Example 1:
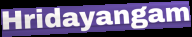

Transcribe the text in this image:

Hridayangam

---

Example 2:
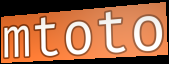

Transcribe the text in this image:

mtoto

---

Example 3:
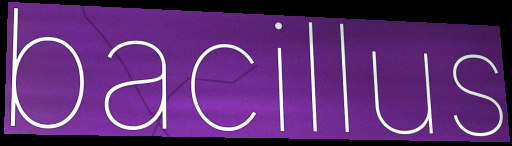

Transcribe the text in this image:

bacillus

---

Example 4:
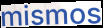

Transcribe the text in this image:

mismos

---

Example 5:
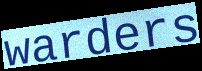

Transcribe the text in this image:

warders